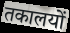
तकालयों